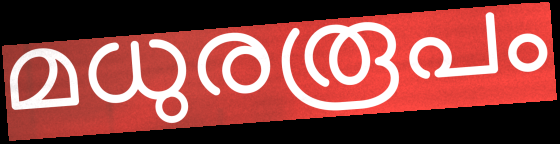
മധുരരൂപം